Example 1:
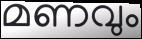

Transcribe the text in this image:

മണവും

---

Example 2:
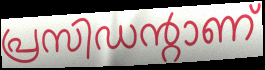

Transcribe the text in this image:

പ്രസിഡന്റാണ്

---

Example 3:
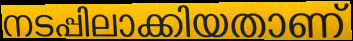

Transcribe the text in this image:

നടപ്പിലാക്കിയതാണ്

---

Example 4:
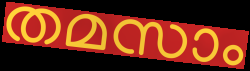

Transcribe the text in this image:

തമസാം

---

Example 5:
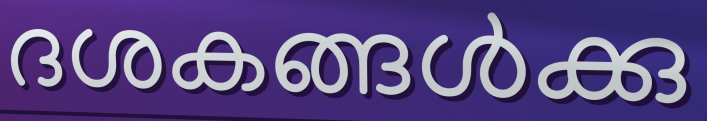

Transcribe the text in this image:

ദശകങ്ങൾക്കു